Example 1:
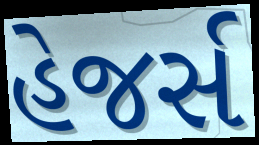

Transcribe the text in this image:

હેજર્સ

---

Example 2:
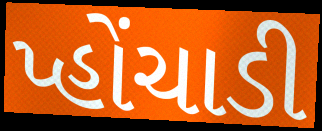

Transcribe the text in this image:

પ્હોંચાડી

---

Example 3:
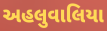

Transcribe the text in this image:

અહલુવાલિયા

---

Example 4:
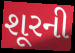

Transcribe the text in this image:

શૂરની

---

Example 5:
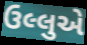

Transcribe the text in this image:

ઉલ્લુએ